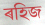
ৰহিজ